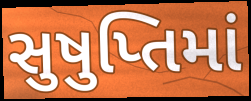
સુષુપ્તિમાં